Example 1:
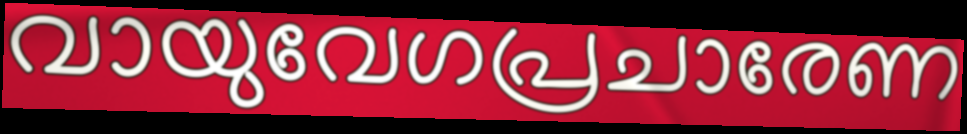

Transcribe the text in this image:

വായുവേഗപ്രചാരേണ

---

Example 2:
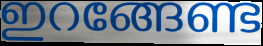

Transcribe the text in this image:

ഇറങ്ങേണ്ട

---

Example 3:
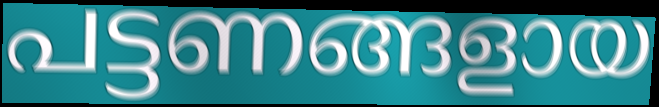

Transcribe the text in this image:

പട്ടണങ്ങളായ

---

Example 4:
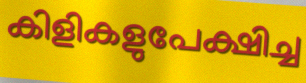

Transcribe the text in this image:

കിളികളുപേക്ഷിച്ച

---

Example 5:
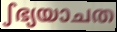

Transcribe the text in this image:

ഽഭ്യയാചത